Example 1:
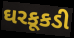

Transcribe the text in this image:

ઘરકૂકડી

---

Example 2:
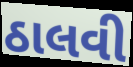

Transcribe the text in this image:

ઠાલવી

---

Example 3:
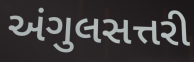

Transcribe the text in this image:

અંગુલસત્તરી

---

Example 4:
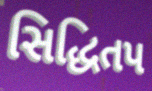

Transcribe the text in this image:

સિદ્ધિતપ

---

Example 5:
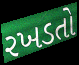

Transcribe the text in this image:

રખડતો